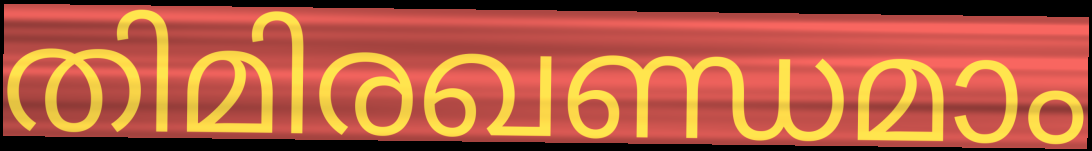
തിമിരഖണ്ഡമാം